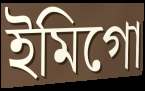
ইমিগো